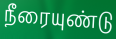
நீரையுண்டு